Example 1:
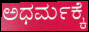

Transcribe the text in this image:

ಅಧರ್ಮಕ್ಕೆ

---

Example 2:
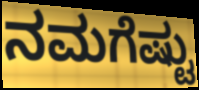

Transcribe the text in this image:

ನಮಗೆಷ್ಟು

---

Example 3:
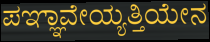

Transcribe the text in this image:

ಪಞ್ಞಾವೇಯ್ಯತ್ತಿಯೇನ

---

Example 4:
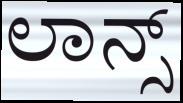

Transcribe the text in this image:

ಲಾನ್ಸ್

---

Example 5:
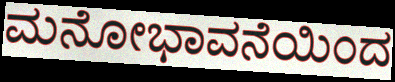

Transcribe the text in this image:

ಮನೋಭಾವನೆಯಿಂದ